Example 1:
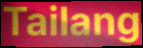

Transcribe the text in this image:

Tailang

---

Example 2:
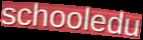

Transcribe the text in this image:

schooledu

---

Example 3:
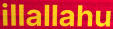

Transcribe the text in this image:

illallahu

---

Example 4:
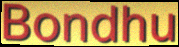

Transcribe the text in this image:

Bondhu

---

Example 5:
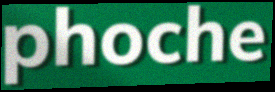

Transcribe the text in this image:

phoche